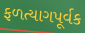
ફળત્યાગપૂર્વક